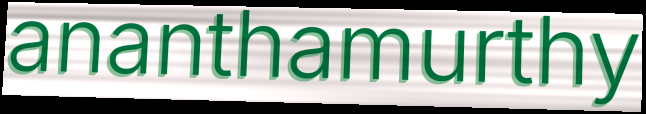
ananthamurthy